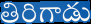
తిరిగాడు